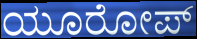
ಯೂರೋಪ್